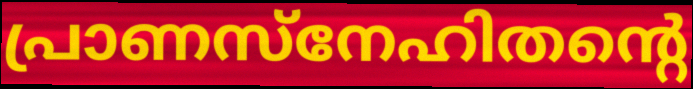
പ്രാണസ്നേഹിതന്റെ